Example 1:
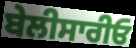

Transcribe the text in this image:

ਬੇਲੀਸਾਰੀਓ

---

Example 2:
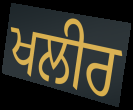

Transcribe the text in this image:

ਖਲੀਰ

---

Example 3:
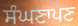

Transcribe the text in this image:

ਸੰਘਣਾਪਣ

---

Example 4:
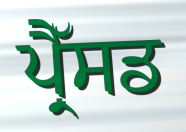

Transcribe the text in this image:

ਪ੍ਰੈੱਸਡ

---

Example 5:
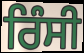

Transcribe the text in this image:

ਰਿੰਸੀ